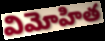
విమోహిత